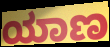
ಯಾಣ